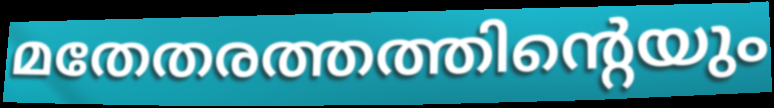
മതേതരത്തത്തിന്റെയും